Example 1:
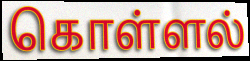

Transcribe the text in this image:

கொள்ளல்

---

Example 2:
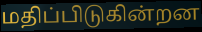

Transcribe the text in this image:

மதிப்பிடுகின்றன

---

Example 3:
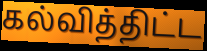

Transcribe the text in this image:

கல்வித்திட்ட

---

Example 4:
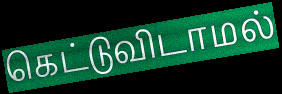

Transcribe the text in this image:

கெட்டுவிடாமல்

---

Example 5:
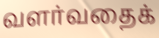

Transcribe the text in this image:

வளர்வதைக்